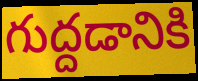
గుద్దడానికి